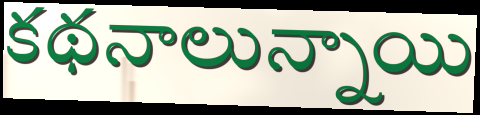
కథనాలున్నాయి